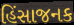
હિંસાજનક